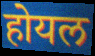
होयल